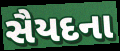
સૈયદના